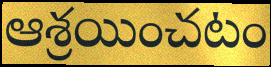
ఆశ్రయించటం